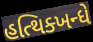
હત્થિક્ખન્ધે